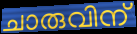
ചാരുവിന്